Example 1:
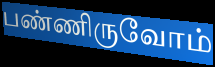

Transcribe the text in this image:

பண்ணிருவோம்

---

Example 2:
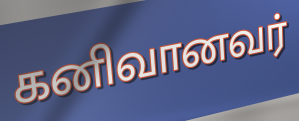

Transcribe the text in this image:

கனிவானவர்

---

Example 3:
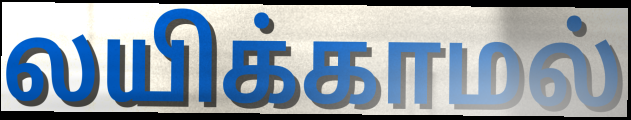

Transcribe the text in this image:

லயிக்காமல்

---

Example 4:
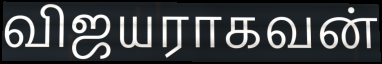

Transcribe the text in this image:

விஜயராகவன்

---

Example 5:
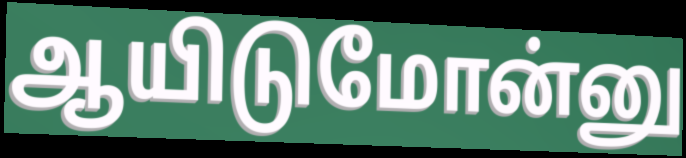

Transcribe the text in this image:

ஆயிடுமோன்னு